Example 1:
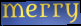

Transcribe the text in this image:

merry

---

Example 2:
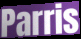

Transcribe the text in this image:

Parris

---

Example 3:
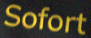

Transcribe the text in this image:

Sofort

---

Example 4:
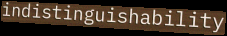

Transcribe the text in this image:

indistinguishability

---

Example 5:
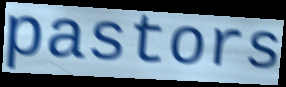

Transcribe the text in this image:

pastors